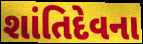
શાંતિદેવના